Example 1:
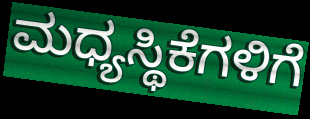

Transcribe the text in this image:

ಮಧ್ಯಸ್ಥಿಕೆಗಳಿಗೆ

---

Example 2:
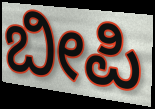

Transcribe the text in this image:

ಬೀಪಿ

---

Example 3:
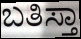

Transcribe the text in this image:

ಬತಿಸ್ತಾ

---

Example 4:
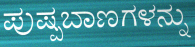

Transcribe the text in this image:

ಪುಷ್ಪಬಾಣಗಳನ್ನು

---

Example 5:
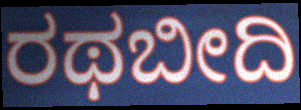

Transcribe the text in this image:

ರಥಬೀದಿ